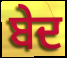
ਬੇਦ